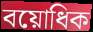
বয়োধিক